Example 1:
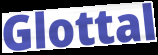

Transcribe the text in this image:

Glottal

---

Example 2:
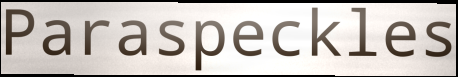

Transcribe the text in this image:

Paraspeckles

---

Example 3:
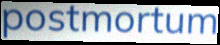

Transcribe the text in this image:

postmortum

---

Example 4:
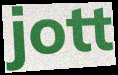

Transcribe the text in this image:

jott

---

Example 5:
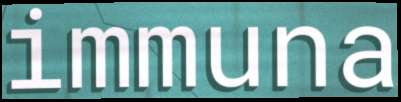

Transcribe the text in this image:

immuna